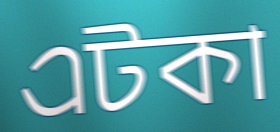
এটকা